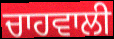
ਚਾਹਵਾਲੀ